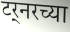
टर्नरच्या